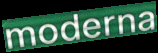
moderna